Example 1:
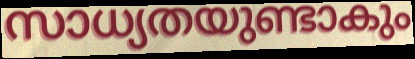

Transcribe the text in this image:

സാധ്യതയുണ്ടാകും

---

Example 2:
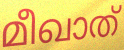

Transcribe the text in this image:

മീഖാത്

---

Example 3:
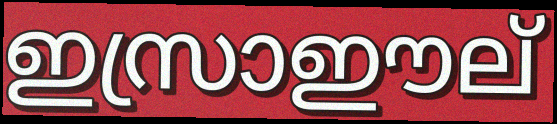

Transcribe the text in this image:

ഇസ്രാഈല്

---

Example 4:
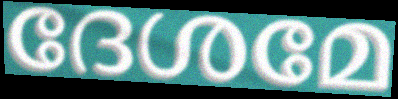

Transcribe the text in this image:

ദേശമേ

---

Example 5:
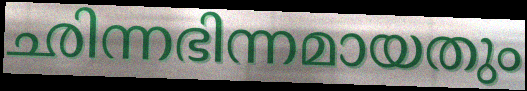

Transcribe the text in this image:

ഛിന്നഭിന്നമായതും